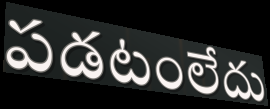
పడటంలేదు